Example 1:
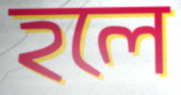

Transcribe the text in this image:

হলে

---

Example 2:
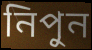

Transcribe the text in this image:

নিপুন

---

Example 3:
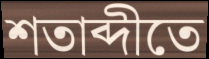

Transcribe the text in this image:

শতাব্দীতে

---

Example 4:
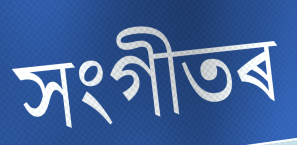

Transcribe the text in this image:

সংগীতৰ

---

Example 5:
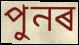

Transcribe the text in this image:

পুনৰ